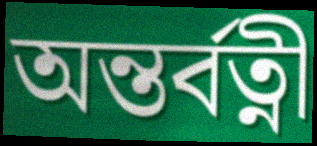
অন্তর্বত্নী